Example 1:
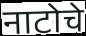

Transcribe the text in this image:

नाटोचे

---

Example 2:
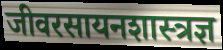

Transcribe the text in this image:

जीवरसायनशास्त्रज्ञ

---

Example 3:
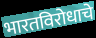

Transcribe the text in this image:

भारतविरोधाचे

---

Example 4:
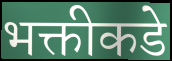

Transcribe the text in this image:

भक्तीकडे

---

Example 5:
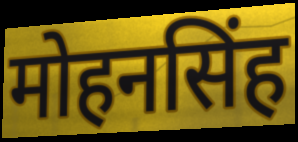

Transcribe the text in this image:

मोहनसिंह